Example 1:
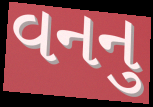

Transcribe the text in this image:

વનનુ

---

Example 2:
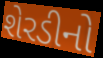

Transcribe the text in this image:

શેરડીનો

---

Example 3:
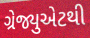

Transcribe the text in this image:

ગ્રેજ્યુએટથી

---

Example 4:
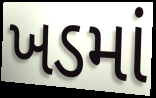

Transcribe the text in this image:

ખડમાં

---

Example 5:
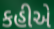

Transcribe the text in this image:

કહીએ